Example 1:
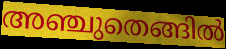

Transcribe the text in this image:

അഞ്ചുതെങ്ങിൽ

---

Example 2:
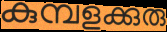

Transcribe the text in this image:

കുമ്പളക്കുരു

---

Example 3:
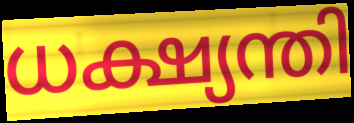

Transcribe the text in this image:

ധക്ഷ്യന്തി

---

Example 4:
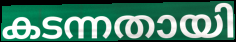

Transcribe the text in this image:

കടന്നതായി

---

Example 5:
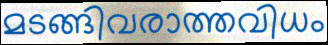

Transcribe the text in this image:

മടങ്ങിവരാത്തവിധം